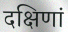
दक्षिणां